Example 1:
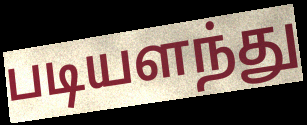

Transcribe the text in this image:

படியளந்து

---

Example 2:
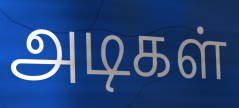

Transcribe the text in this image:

அடிகள்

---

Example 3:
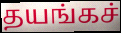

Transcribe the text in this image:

தயங்கச்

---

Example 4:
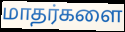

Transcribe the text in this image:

மாதர்களை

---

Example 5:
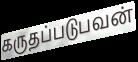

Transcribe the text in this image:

கருதப்படுபவன்